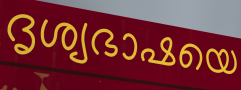
ദൃശ്യഭാഷയെ